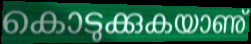
കൊടുക്കുകയാണു്